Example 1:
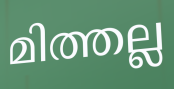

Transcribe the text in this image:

മിത്തല്ല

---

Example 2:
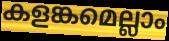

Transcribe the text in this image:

കളങ്കമെല്ലാം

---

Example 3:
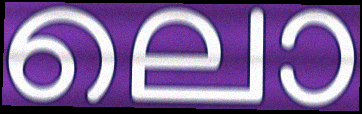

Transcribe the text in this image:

ലൊ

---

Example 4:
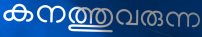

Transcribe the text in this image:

കനത്തുവരുന്ന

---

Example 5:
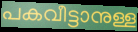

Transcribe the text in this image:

പകവീട്ടാനുള്ള